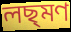
লছ্মণ